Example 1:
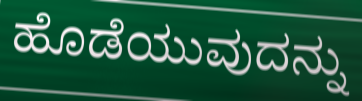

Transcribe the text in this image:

ಹೊಡೆಯುವುದನ್ನು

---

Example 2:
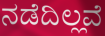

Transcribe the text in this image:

ನಡೆದಿಲ್ಲವೆ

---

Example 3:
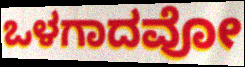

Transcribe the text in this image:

ಒಳಗಾದವೋ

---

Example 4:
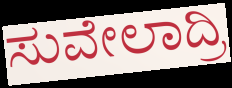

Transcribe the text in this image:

ಸುವೇಲಾದ್ರಿ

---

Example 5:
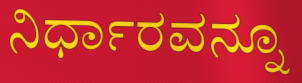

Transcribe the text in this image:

ನಿರ್ಧಾರವನ್ನೂ